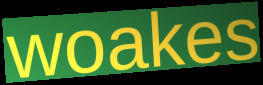
woakes